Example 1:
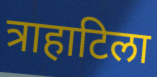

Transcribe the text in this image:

त्राहाटिला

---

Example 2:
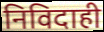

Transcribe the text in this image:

निविदाही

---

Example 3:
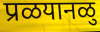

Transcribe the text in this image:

प्रळयानळु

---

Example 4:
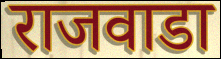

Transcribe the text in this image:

राजवाडा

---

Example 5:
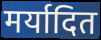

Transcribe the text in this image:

मर्यादित